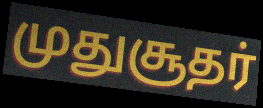
முதுசூதர்